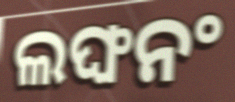
ଲଙ୍ଘନଂ